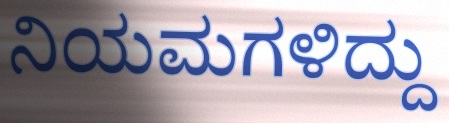
ನಿಯಮಗಳಿದ್ದು